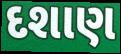
દશાણ